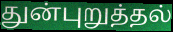
துன்புறுத்தல்